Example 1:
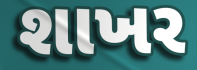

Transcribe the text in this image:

શાખર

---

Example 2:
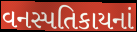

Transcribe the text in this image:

વનસ્પતિકાયનાં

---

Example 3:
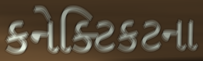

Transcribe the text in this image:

કનેક્ટિકટના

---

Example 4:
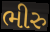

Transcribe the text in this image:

ભીરુ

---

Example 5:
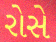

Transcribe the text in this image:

રોસે